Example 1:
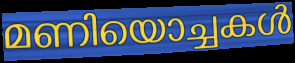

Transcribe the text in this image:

മണിയൊച്ചകൾ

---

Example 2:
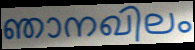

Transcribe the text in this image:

ഞാനഖിലം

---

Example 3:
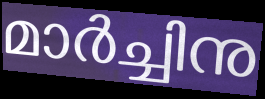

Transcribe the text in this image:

മാർച്ചിനു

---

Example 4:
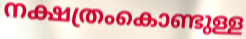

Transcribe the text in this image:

നക്ഷത്രംകൊണ്ടുള്ള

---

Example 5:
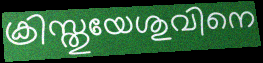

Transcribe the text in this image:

ക്രിസ്തുയേശുവിനെ